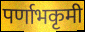
पर्णाभकृमी